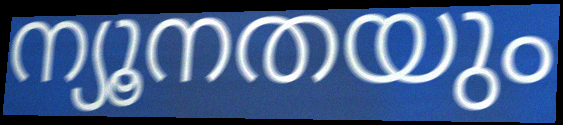
ന്യൂനതയും